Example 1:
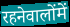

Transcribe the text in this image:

रहनेवालोंमें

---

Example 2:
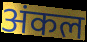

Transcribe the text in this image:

अंकल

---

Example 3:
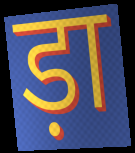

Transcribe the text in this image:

ड़ा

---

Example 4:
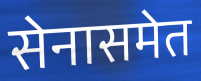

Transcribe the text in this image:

सेनासमेत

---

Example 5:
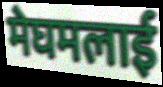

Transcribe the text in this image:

मेघमलाई